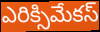
ఎరిక్సిమేకస్